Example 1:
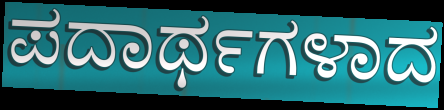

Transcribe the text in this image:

ಪದಾರ್ಥಗಳಾದ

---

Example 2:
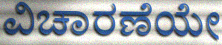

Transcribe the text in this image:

ವಿಚಾರಣೆಯೇ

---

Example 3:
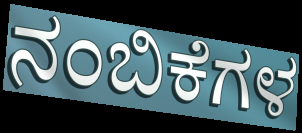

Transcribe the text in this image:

ನಂಬಿಕೆಗಳ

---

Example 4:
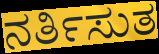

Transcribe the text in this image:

ನರ್ತಿಸುತ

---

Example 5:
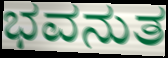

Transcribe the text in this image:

ಭವನುತ